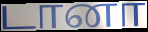
டானா